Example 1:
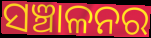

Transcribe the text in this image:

ସଞ୍ଚାଳନର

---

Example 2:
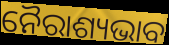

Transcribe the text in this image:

ନୈରାଶ୍ୟଭାବ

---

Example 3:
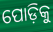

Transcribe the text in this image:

ପୋଡ଼ିକୁ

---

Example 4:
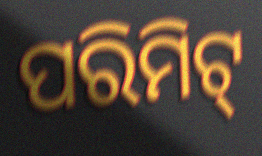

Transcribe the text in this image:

ପରିମିଟ୍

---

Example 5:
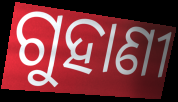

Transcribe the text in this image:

ଗୁହାଣୀ